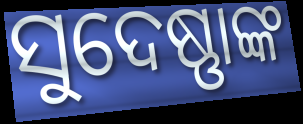
ସୁଦେଷ୍ଣାଙ୍କ